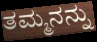
ತಮ್ಮನನ್ನು